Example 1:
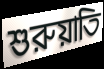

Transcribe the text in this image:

শুরুয়াতি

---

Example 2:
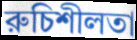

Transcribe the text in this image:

রুচিশীলতা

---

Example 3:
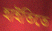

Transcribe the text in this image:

হাইতিতে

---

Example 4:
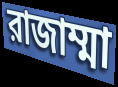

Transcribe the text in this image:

রাজাম্মা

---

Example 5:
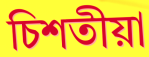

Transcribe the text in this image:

চিশতীয়া